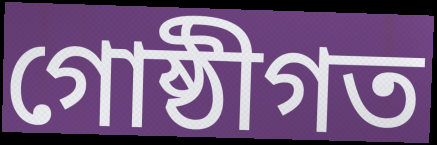
গোষ্ঠীগত